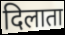
दिलाता